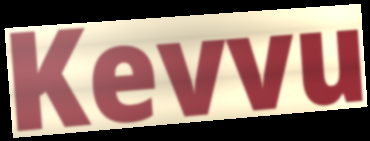
Kevvu